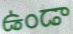
ఉండా